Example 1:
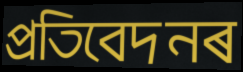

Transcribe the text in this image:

প্ৰতিবেদনৰ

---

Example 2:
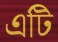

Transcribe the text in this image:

এটি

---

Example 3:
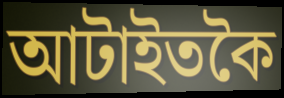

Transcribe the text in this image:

আটাইতকৈ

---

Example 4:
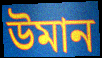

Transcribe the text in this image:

উমান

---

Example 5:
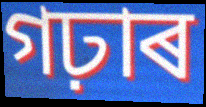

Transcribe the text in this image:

গঢ়াৰ